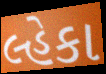
લ્હેકા